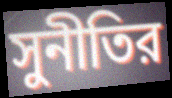
সুনীতির